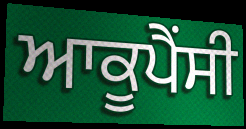
ਆਕੂਪੈਂਸੀ